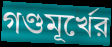
গণ্ডমূর্খের